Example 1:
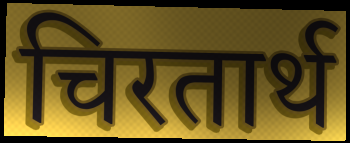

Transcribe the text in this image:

चिरतार्थ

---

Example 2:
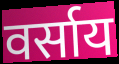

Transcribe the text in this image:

वर्साय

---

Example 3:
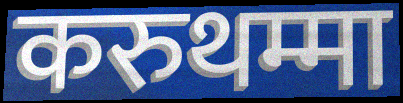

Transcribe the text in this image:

करुथम्मा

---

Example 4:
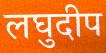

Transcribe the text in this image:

लघुदीप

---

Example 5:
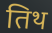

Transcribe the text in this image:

तिथ